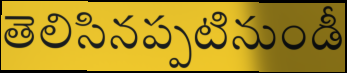
తెలిసినప్పటినుండీ